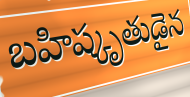
బహిష్కృతుడైన